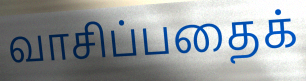
வாசிப்பதைக்